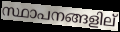
സ്ഥാപനങ്ങളില്